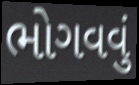
ભોગવવું